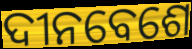
ଦୀନବେଶେ